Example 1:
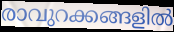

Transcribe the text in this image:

രാവുറക്കങ്ങളിൽ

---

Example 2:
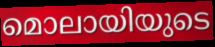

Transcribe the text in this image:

മൊലായിയുടെ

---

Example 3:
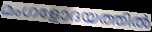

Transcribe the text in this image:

മംഗളോദയത്തിൽ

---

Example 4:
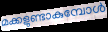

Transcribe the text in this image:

മക്കളുണ്ടാകുമ്പോൾ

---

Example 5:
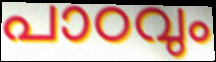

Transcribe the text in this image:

പാഠവും